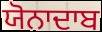
ਯੋਨਾਦਾਬ